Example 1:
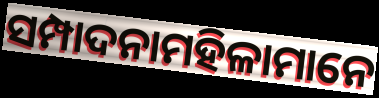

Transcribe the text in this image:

ସମ୍ପାଦନାମହିଳାମାନେ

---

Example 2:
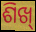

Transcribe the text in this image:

ଶିଖ୍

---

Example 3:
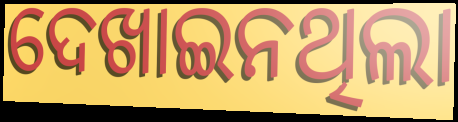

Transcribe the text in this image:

ଦେଖାଇନଥିଲା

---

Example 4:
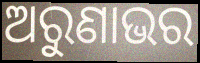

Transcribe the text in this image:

ଅରୁଣାଭର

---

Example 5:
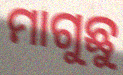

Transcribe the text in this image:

ମାଗୁଛୁ